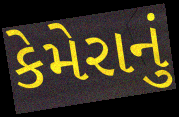
કેમેરાનું